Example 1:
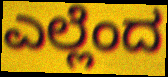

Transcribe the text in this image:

ಎಲ್ಲೆಂದ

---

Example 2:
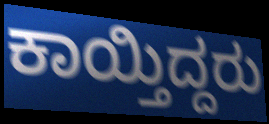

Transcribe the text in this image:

ಕಾಯ್ತಿದ್ದರು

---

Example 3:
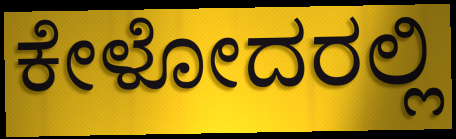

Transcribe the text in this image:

ಕೇಳೋದರಲ್ಲಿ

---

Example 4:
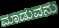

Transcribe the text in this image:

ಮಾಡುವನು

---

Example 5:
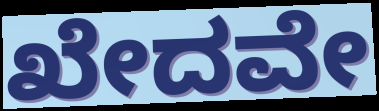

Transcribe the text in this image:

ಖೇದವೇ